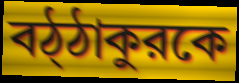
বঠ্ঠাকুরকে